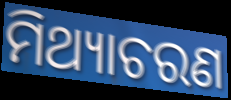
ମିଥ୍ୟାଚରଣ